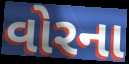
વોરના